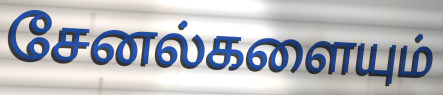
சேனல்களையும்